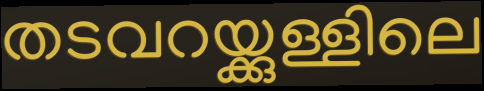
തടവറയ്ക്കുള്ളിലെ